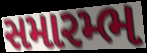
સમારમ્ભ